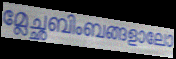
മ്ലേച്ഛബിംബങ്ങളാലോ